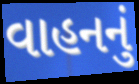
વાહનનું